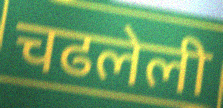
चढलेली